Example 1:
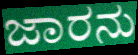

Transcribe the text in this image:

ಜಾರನು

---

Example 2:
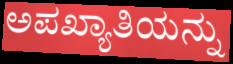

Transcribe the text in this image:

ಅಪಖ್ಯಾತಿಯನ್ನು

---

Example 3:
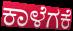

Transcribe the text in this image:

ಕಾಳೆಗಕೆ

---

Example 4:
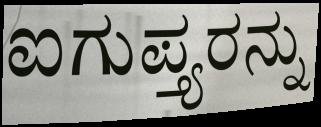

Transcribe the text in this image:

ಐಗುಪ್ತ್ಯರನ್ನು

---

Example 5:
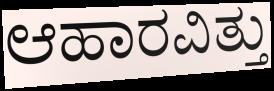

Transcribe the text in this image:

ಆಹಾರವಿತ್ತು